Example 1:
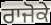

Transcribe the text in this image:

ਰਾਜੋਕੇ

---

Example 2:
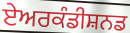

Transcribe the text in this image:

ਏਅਰਕੰਡੀਸ਼ਨਡ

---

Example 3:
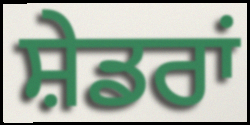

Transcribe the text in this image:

ਸ਼ੇਡਰਾਂ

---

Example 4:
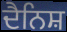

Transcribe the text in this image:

ਦੈਨਿਸ਼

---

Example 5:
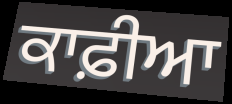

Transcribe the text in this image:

ਕਾਫ਼ੀਆ